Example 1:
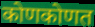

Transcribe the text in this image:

कोणकोणत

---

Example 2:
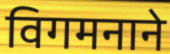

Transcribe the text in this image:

विगमनाने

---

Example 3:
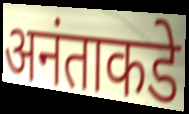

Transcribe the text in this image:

अनंताकडे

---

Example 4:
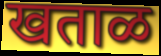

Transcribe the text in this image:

खताळ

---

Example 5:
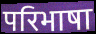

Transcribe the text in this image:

परिभाषा